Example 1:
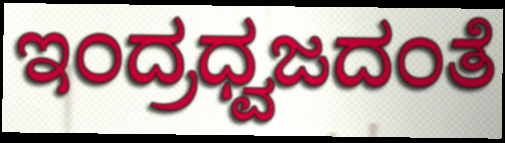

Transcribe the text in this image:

ಇಂದ್ರಧ್ವಜದಂತೆ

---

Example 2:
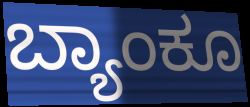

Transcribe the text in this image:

ಬ್ಯಾಂಕೂ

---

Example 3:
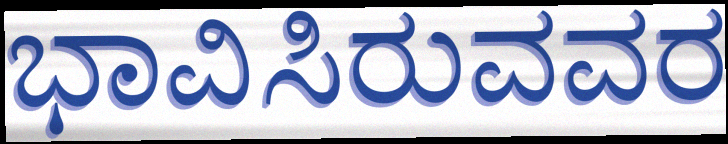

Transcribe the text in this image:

ಭಾವಿಸಿರುವವರ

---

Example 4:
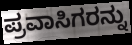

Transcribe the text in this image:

ಪ್ರವಾಸಿಗರನ್ನು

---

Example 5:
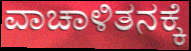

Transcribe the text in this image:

ವಾಚಾಳಿತನಕ್ಕೆ